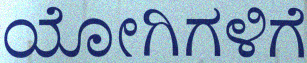
ಯೋಗಿಗಳಿಗೆ